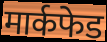
मार्कफेड